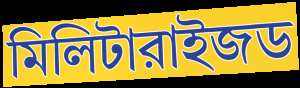
মিলিটারাইজড